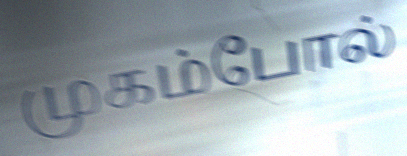
முகம்போல்